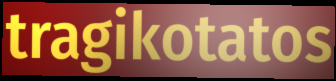
tragikotatos